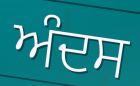
ਅੰਦਸ